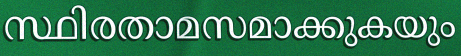
സ്ഥിരതാമസമാക്കുകയും